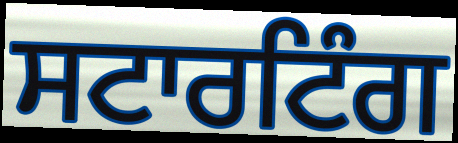
ਸਟਾਰਟਿੰਗ